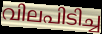
വിലപിടിച്ച